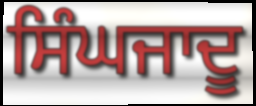
ਸਿੰਘਜਾਦੂ